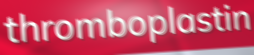
thromboplastin